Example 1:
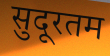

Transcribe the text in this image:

सुदूरतम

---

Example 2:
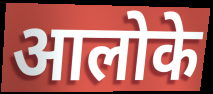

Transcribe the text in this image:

आलोके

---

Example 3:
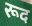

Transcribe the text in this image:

रूद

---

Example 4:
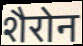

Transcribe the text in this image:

शैरोन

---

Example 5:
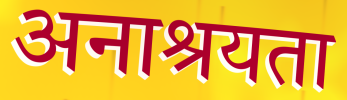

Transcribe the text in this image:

अनाश्रयता